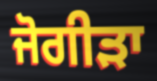
ਜੋਗੀੜਾ